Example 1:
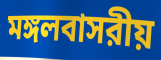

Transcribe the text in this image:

মঙ্গলবাসরীয়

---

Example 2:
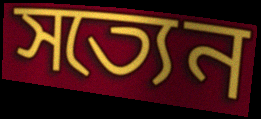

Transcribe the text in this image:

সত্যেন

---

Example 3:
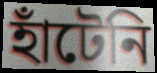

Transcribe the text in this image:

হাঁটেনি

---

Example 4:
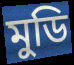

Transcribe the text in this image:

মুডি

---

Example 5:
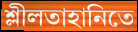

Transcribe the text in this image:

শ্লীলতাহানিতে